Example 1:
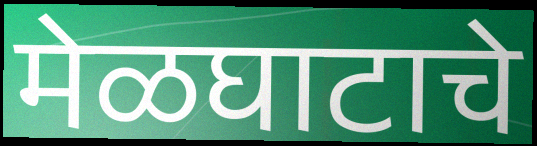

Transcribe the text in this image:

मेळघाटाचे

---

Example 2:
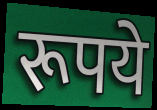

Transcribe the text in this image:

रूपये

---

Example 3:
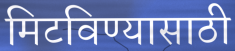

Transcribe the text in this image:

मिटविण्यासाठी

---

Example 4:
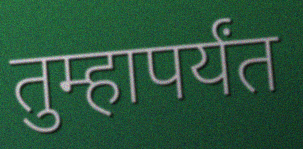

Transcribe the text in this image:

तुम्हापर्यंत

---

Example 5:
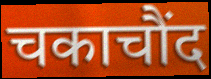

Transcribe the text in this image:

चकाचौंद